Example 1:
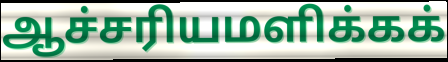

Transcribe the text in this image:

ஆச்சரியமளிக்கக்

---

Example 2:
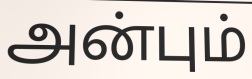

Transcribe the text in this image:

அன்பும்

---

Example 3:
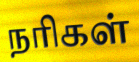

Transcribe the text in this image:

நரிகள்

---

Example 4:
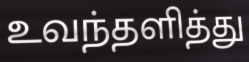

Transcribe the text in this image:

உவந்தளித்து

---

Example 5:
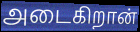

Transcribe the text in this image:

அடைகிறான்